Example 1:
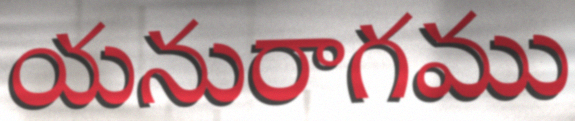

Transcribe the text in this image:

యనురాగము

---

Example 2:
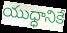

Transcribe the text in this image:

యుధ్ధానికే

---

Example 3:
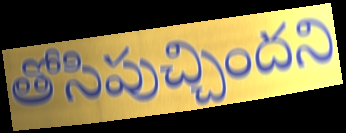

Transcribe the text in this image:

తోసిపుచ్చిందని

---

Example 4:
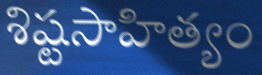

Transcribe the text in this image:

శిష్టసాహిత్యం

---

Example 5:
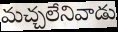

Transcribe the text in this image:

మచ్చలేనివాడు